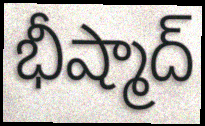
భీష్మాద్